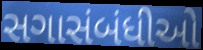
સગાસંબંધીઓ